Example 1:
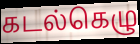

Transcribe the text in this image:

கடல்கெழு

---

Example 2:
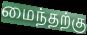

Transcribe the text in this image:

மைந்தற்கு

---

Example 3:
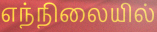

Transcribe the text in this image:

எந்நிலையில்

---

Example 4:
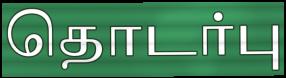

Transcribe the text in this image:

தொடர்பு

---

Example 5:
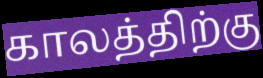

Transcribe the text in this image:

காலத்திற்கு